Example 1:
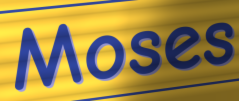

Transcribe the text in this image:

Moses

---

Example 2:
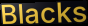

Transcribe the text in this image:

Blacks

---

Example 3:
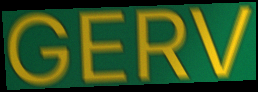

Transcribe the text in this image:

GERV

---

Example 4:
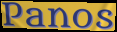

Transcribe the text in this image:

Panos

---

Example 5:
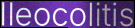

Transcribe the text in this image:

Ileocolitis